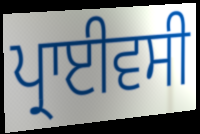
ਪ੍ਰਾਈਵਸੀ